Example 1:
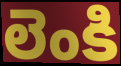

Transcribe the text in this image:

లెంకి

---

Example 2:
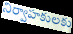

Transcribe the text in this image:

నిర్వాహకులకు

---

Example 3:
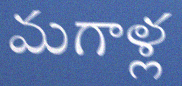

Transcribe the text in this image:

మగాళ్ల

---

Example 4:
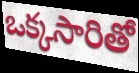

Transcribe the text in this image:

ఒక్కసారితో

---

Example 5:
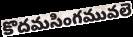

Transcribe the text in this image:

కొదమసింగమువలె